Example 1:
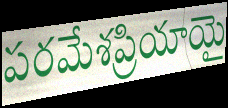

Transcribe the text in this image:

పరమేశప్రియాయై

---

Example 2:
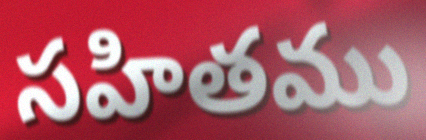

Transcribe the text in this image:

సహితము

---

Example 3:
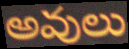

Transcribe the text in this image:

అవులు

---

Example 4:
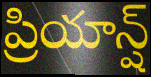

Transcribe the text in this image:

ప్రియాన్ష్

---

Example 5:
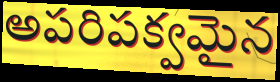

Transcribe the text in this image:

అపరిపక్వమైన